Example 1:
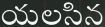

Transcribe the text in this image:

యలసిన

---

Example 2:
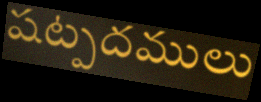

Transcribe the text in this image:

షట్పదములు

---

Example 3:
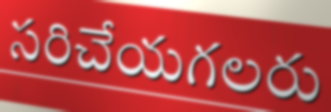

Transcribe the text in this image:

సరిచేయగలరు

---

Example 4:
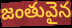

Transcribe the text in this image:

జంతువైన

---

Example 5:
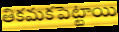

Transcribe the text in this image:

తికమకపెట్టాయి